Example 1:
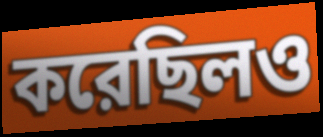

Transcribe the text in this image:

করেছিলও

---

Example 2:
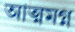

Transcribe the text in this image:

আত্মমগ্ন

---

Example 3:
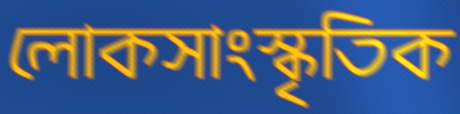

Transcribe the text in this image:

লোকসাংস্কৃতিক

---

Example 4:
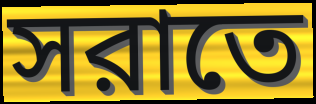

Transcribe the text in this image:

সরাতে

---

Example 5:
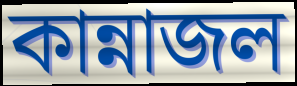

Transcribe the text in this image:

কান্নাজল